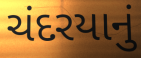
ચંદરયાનું